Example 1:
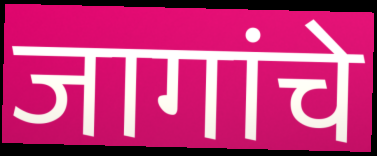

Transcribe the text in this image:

जागांचे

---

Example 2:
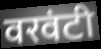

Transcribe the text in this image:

वरवंटी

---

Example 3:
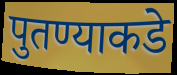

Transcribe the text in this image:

पुतण्याकडे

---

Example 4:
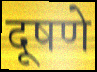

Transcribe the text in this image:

दूषणे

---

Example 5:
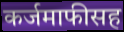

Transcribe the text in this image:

कर्जमाफीसह